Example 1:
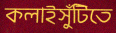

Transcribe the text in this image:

কলাইসুঁটিতে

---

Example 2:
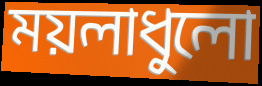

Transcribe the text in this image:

ময়লাধুলো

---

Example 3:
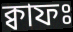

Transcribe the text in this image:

ক্বাফঃ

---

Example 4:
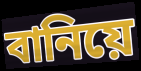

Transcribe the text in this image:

বানিয়ে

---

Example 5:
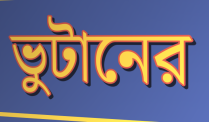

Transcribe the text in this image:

ভুটানের